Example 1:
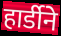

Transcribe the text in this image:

हार्डीने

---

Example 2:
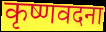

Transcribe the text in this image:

कृष्णवदना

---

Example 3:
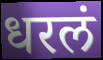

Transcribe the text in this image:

धरलं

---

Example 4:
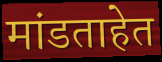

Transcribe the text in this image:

मांडताहेत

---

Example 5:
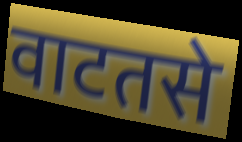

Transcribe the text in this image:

वाटतसे